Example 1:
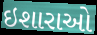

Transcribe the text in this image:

ઇશારાઓ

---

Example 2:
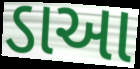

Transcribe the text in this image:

ડાઆ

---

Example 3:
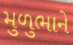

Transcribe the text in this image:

મુળુભાને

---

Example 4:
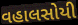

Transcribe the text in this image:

વહાલસોયી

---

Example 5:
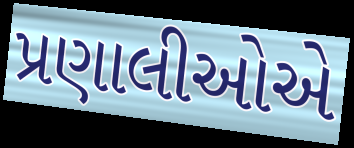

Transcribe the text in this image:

પ્રણાલીઓએ